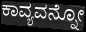
ಕಾವ್ಯವನ್ನೋ